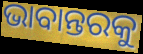
ଭାବାନ୍ତରକୁ